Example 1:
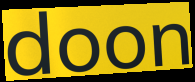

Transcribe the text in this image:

doon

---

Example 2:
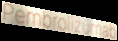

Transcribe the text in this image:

Pembrolizumab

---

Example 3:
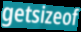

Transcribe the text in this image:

getsizeof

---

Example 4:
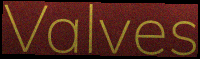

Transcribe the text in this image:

Valves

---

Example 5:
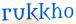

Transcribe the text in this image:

rukkho